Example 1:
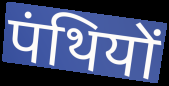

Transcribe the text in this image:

पंथियों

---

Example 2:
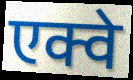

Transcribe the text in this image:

एक्वे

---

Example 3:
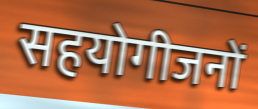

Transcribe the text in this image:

सहयोगीजनों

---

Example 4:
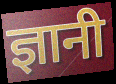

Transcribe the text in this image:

ज्ञानी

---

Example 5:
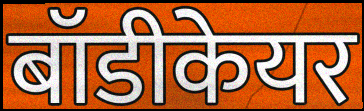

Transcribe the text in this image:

बॉडीकेयर